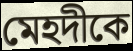
মেহদীকে